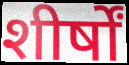
शीर्षों